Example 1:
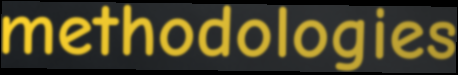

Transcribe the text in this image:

methodologies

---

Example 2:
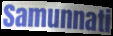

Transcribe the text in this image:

Samunnati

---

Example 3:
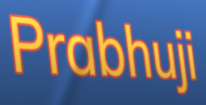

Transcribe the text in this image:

Prabhuji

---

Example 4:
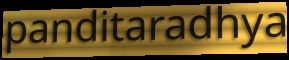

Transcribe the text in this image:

panditaradhya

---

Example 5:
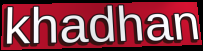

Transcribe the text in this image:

khadhan